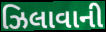
ઝિલાવાની